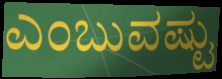
ಎಂಬುವಷ್ಟು